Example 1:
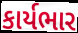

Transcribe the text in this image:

કાર્યભાર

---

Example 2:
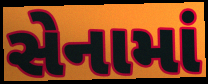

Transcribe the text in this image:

સેનામાં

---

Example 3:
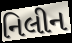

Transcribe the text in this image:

નિલીન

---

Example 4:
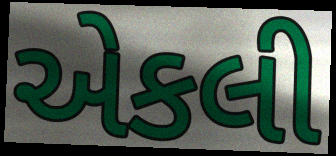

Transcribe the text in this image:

એકલી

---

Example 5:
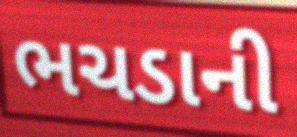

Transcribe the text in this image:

ભચડાની